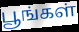
பூங்கள்